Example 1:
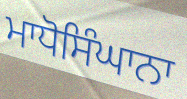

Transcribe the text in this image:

ਮਾਧੋਸਿੰਘਾਨਾ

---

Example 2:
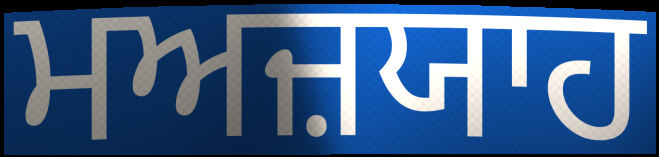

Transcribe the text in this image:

ਮਅਜ਼ਯਾਹ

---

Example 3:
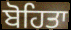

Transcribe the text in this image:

ਬੋਹਿਤਾ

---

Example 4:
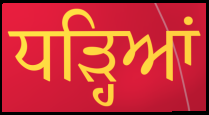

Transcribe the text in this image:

ਧੜ੍ਹਿਆਂ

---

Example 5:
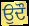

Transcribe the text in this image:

ਉਦੌ